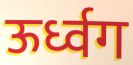
ऊर्ध्वग